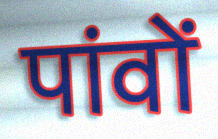
पांवों